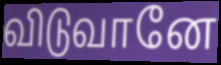
விடுவானே